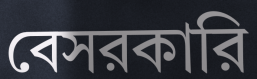
বেসরকারি